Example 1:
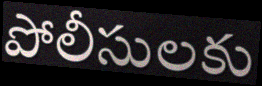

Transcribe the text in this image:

పోలీసులకు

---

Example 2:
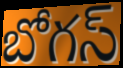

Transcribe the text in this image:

బోగస్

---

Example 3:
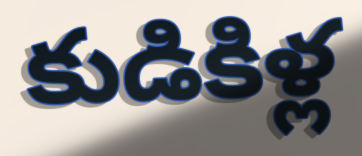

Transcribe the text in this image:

కుడికిళ్ల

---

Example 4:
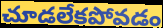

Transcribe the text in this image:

చూడలేకపోవడం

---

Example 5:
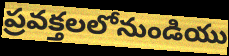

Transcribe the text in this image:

ప్రవక్తలలోనుండియు